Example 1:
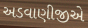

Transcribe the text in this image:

અડવાણીજીએ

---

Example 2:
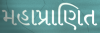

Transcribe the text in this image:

મહાપ્રાણિત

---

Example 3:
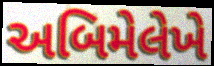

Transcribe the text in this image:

અબિમેલેખે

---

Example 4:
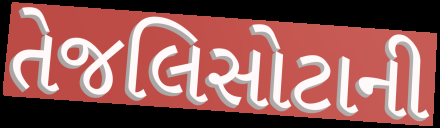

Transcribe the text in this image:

તેજલિસોટાની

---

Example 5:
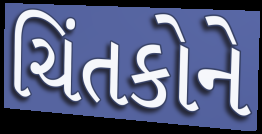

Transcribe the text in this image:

ચિંતકોને